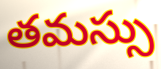
తమస్సు